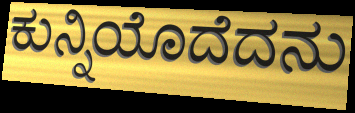
ಕುನ್ನಿಯೊದೆದನು